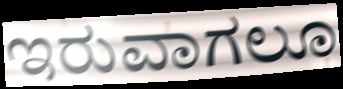
ಇರುವಾಗಲೂ